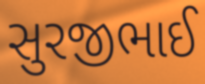
સુરજીભાઈ